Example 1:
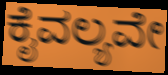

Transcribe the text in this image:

ಕೈವಲ್ಯವೇ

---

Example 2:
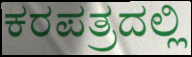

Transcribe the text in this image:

ಕರಪತ್ರದಲ್ಲಿ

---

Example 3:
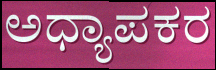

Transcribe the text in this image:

ಅಧ್ಯಾಪಕರ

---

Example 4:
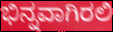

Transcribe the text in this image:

ಭಿನ್ನವಾಗಿರಲಿ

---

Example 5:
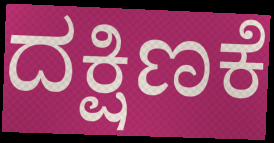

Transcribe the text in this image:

ದಕ್ಷಿಣಕೆ